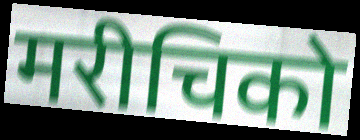
मरीचिको